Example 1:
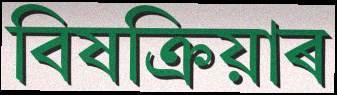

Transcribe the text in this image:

বিষক্ৰিয়াৰ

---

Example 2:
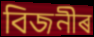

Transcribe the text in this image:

বিজনীৰ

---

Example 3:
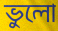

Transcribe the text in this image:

ভুলো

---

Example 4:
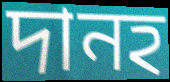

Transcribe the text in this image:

দানহ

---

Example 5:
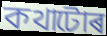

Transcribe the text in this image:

কথাটোৰ